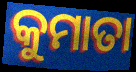
କୁମାତା